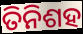
ତିନିଶହ